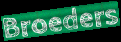
Broeders